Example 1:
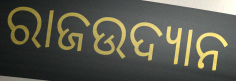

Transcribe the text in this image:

ରାଜଉଦ୍ୟାନ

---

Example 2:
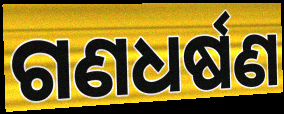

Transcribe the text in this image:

ଗଣଧର୍ଷଣ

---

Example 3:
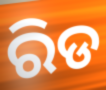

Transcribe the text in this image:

ରିଡ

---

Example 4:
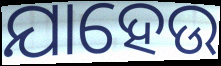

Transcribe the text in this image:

ଯାହେଉ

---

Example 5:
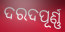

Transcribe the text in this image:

ଦରଦପୂର୍ଣ୍ଣ